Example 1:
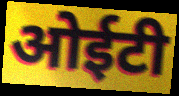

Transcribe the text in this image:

ओईटी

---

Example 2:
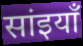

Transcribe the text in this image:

सांइयाँ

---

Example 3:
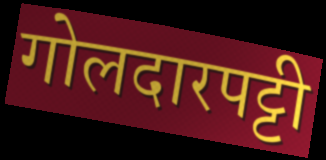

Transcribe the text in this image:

गोलदारपट्टी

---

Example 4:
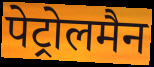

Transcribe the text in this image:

पेट्रोलमैन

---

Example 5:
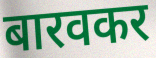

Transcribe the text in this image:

बारवकर